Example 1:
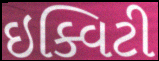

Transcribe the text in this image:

ઇક્વિટી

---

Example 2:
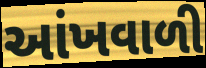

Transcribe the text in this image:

આંખવાળી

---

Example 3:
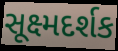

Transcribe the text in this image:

સૂક્ષ્મદર્શક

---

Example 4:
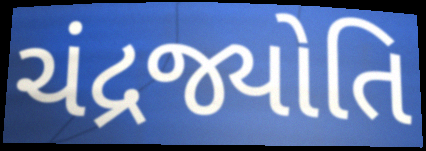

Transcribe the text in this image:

ચંદ્રજ્યોતિ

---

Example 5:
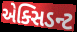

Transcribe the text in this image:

એક્સિડન્ટ